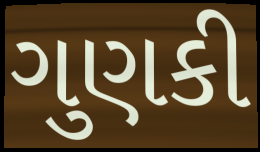
ગુણકી